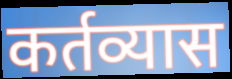
कर्तव्यास